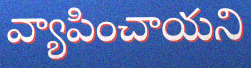
వ్యాపించాయని